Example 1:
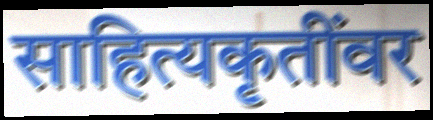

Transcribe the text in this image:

साहित्यकृतींवर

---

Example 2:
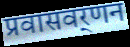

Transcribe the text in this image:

प्रवासवर्णन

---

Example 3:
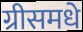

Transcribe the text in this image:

ग्रीसमधे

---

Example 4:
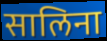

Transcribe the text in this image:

सालिना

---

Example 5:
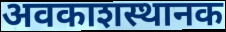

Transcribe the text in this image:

अवकाशस्थानक